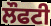
ਲੌਫਟੀ